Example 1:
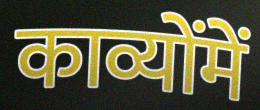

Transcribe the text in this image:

काव्योंमें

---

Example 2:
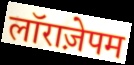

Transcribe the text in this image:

लॉराज़ेपम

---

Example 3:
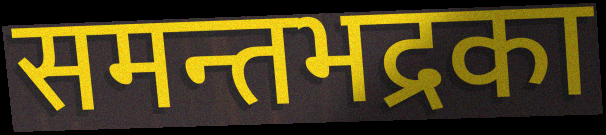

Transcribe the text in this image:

समन्तभद्रका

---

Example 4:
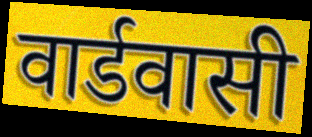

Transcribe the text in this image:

वार्डवासी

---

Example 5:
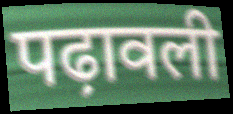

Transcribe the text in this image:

पढ़ावली